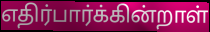
எதிர்பார்க்கின்றாள்